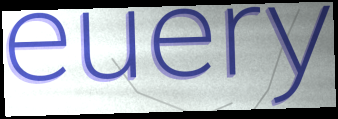
euery